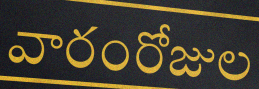
వారంరోజుల